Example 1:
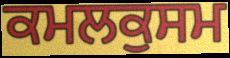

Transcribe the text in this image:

ਕਮਲਕੁਸਮ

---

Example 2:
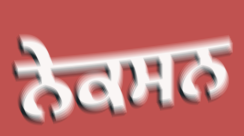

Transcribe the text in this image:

ਨੇਕਸਨ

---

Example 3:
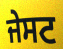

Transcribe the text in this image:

ਜੇਸਟ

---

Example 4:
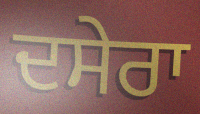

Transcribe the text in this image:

ਦਸੇਰਾ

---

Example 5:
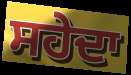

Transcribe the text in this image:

ਸਹੇਦਾ